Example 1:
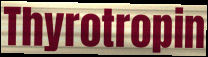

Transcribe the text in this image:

Thyrotropin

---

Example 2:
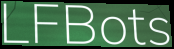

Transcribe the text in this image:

LFBots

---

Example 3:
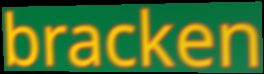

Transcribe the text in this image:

bracken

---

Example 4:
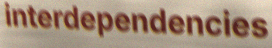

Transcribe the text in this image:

interdependencies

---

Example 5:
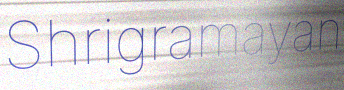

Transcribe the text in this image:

Shrigramayan